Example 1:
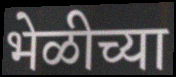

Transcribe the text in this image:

भेळीच्या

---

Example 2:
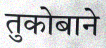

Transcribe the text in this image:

तुकोबाने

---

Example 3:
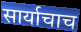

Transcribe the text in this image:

सार्याचाच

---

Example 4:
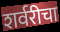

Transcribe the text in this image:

शर्वरीचा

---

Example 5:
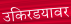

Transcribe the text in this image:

उकिरडयावर